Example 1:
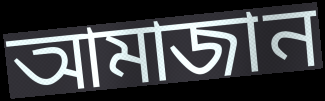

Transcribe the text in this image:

আমাজান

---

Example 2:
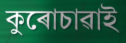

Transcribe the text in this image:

কুৰোচাৱাই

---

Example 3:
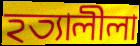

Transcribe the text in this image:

হত্যালীলা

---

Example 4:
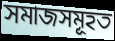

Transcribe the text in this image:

সমাজসমূহত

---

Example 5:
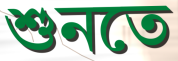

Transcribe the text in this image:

শুনতে